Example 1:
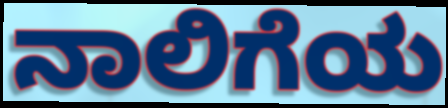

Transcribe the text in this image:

ನಾಲಿಗೆಯ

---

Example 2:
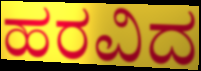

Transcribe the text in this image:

ಹರವಿದ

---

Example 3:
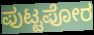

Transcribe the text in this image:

ಪುಟ್ಟಪೋರ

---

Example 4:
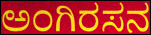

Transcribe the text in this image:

ಅಂಗಿರಸನ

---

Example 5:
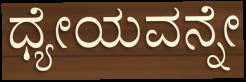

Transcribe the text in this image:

ಧ್ಯೇಯವನ್ನೇ